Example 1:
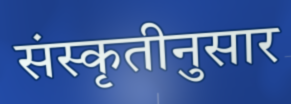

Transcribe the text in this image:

संस्कृतीनुसार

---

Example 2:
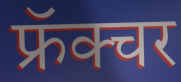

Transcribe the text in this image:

फ्रॅक्चर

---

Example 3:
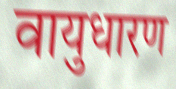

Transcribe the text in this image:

वायुधारण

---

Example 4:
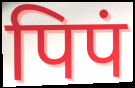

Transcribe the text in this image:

पिपं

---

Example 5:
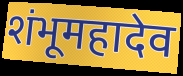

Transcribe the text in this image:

शंभूमहादेव